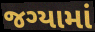
જગ્યામાં